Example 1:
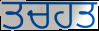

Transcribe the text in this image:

ਤਚਹਤ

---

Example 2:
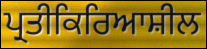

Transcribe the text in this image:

ਪ੍ਰਤੀਕਿਰਿਆਸ਼ੀਲ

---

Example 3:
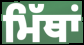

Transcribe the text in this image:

ਮਿੱਥਾਂ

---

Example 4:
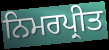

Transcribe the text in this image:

ਨਿਮਰਪ੍ਰੀਤ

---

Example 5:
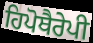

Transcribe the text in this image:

ਹਿਪੋਥੈਰੇਪੀ